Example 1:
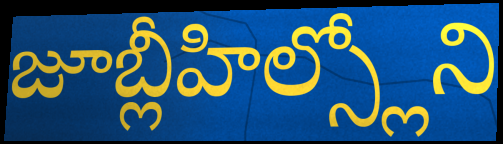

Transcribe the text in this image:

జూబ్లీహిల్స్లోని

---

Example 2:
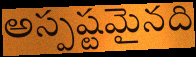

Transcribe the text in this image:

అస్పష్టమైనది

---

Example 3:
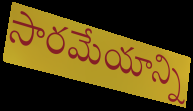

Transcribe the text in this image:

సారమేయాన్ని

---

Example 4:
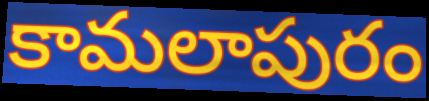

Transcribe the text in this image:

కామలాపురం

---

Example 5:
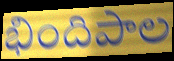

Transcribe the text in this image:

భిందిపాల